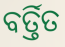
ବର୍ତ୍ତିତ